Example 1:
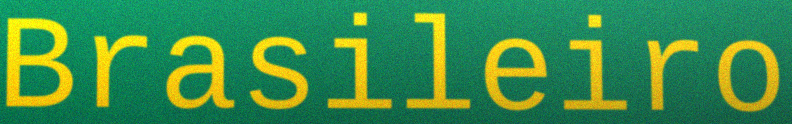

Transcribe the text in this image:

Brasileiro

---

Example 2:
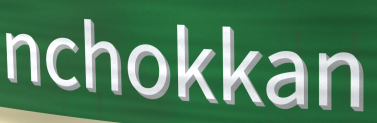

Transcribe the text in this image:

nchokkan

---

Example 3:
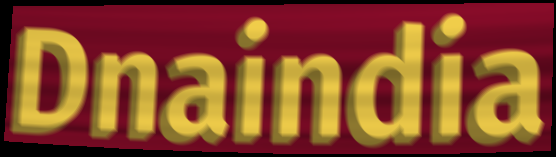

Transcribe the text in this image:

Dnaindia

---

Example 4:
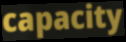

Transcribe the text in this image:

capacity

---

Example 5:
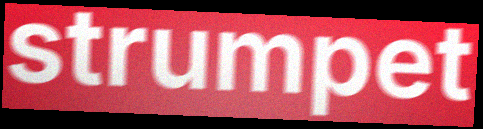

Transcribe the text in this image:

strumpet